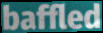
baffled